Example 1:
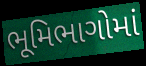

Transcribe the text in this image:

ભૂમિભાગોમાં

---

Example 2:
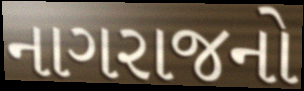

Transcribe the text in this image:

નાગરાજનો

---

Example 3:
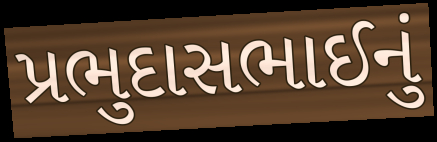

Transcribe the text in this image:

પ્રભુદાસભાઈનું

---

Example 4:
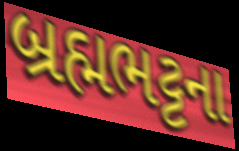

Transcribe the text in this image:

બ્રહ્મભટ્ટના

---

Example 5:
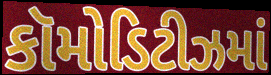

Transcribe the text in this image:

કૉમોડિટીઝમાં